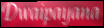
Dwaipayana